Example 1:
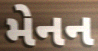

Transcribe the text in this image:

મેનન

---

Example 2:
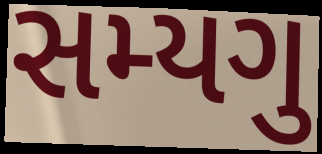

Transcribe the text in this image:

સમ્યગુ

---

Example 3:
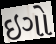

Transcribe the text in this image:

ઇગો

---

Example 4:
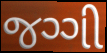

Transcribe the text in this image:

જગ્ગી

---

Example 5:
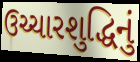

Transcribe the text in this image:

ઉચ્ચારશુદ્ધિનું